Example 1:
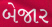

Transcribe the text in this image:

બેજાર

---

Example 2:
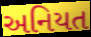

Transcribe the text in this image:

અનિયત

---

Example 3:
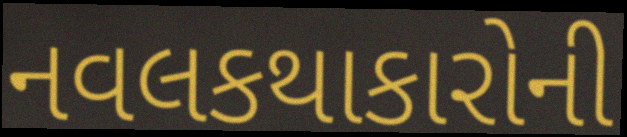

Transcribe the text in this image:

નવલકથાકારોની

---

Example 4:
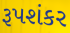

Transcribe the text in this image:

રૂપશંકર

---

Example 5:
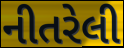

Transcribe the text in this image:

નીતરેલી